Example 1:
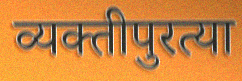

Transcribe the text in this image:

व्यक्तीपुरत्या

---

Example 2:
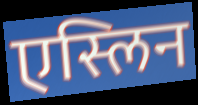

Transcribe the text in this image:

एस्लिन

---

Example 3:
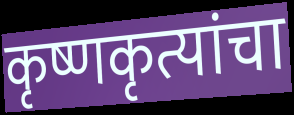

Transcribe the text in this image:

कृष्णकृत्यांचा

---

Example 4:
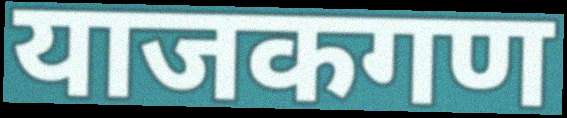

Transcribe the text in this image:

याजकगण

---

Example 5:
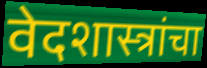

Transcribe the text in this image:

वेदशास्त्रांचा